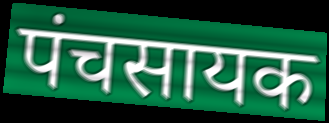
पंचसायक